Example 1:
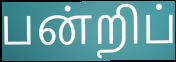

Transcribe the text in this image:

பன்றிப்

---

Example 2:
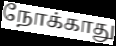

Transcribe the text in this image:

நோக்காது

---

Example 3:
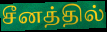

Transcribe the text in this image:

சீனத்தில்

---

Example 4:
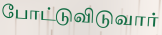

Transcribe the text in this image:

போட்டுவிடுவார்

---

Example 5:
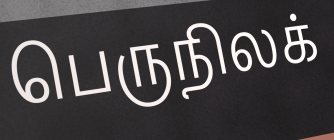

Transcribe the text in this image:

பெருநிலக்